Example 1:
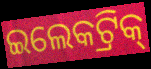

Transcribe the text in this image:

ଇଲେକଟ୍ରିକ୍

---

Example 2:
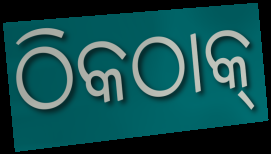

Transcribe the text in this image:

ଠିକଠାକ୍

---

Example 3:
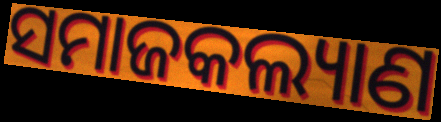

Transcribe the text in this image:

ସମାଜକଲ୍ୟାଣ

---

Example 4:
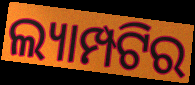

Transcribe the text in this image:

ଲ୍ୟାମ୍ପଟିର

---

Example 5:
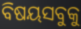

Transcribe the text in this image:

ବିଷୟସବୁକୁ